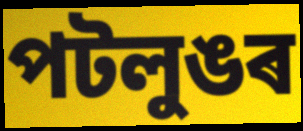
পটলুঙৰ